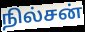
நில்சன்